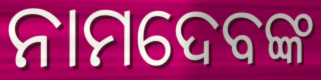
ନାମଦେବଙ୍କ